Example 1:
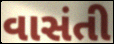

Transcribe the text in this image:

વાસંતી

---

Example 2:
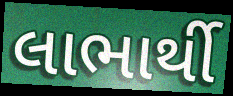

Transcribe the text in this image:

લાભાર્થી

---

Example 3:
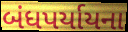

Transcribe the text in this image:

બંધપર્યાયના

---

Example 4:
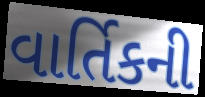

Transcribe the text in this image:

વાર્તિકની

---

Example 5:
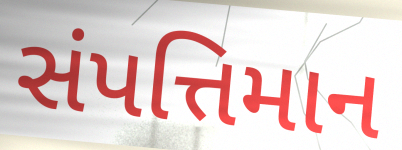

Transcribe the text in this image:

સંપત્તિમાન